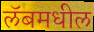
लॅबमधील